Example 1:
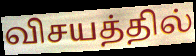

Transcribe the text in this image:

விசயத்தில்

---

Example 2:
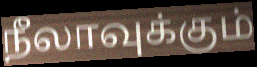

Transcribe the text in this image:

நீலாவுக்கும்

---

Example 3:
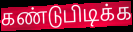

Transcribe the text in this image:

கண்டுபிடிக்க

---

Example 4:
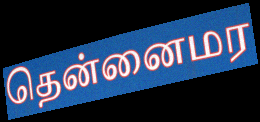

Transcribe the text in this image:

தென்னைமர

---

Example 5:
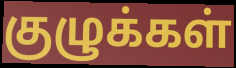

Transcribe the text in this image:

குழுக்கள்